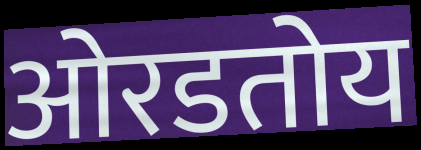
ओरडतोय